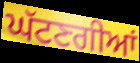
ਘੱਟਣਗੀਆਂ